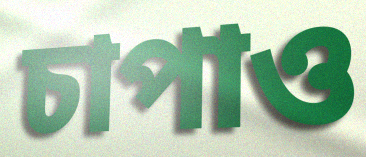
চাপাও